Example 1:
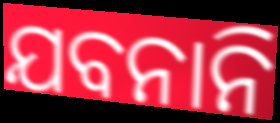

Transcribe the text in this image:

ଯବନାନି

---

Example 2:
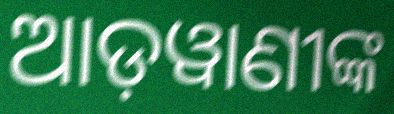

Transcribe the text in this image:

ଆଡ଼ୱାଣୀଙ୍କ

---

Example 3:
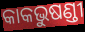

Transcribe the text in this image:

କାକଭୁଷଣ୍ଡୀ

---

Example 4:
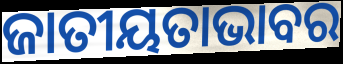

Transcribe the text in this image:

ଜାତୀୟତାଭାବର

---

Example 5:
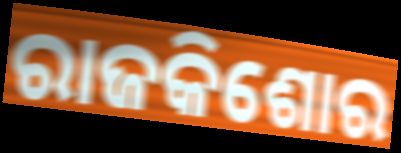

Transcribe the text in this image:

ରାଜକିଶୋର